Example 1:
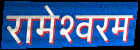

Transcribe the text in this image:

रामेश्वरम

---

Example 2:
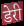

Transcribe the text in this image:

डेरी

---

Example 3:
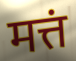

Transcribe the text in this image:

मत्तं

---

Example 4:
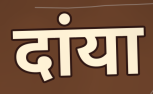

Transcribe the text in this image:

दांया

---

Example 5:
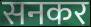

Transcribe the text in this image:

सनकर